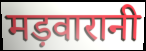
मड़वारानी